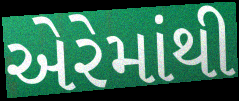
એરેમાંથી